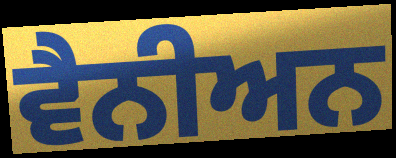
ਵੈਨੀਅਨ